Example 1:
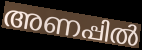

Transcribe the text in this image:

അണപ്പിൽ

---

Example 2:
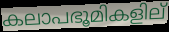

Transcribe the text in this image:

കലാപഭൂമികളില്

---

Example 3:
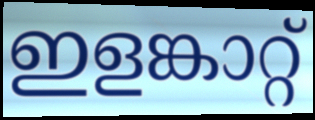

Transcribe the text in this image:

ഇളങ്കാറ്റ്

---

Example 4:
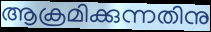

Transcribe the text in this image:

ആക്രമിക്കുന്നതിനു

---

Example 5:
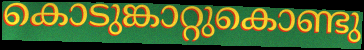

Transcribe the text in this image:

കൊടുങ്കാറ്റുകൊണ്ടു